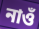
নাওঁ